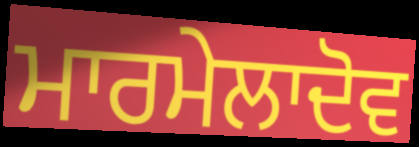
ਮਾਰਮੇਲਾਦੋਵ